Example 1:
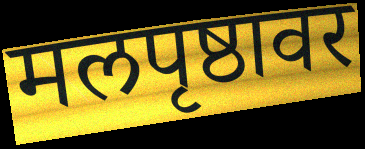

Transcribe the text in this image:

मलपृष्ठावर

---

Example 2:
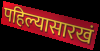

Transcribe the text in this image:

पहिल्यासारखं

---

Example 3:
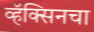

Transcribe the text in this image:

व्हॅक्सिनचा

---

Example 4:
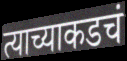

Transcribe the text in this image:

त्याच्याकडचं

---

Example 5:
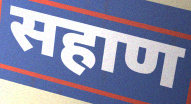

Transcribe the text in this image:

सहाण